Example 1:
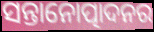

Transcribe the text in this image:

ସନ୍ତାନୋତ୍ପାଦନର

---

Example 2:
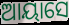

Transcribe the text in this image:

ଆୟାସେ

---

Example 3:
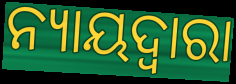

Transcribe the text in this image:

ନ୍ୟାୟଦ୍ୱାରା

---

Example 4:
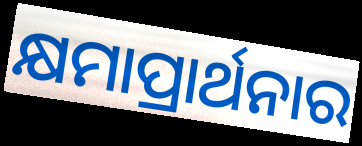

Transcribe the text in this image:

କ୍ଷମାପ୍ରାର୍ଥନାର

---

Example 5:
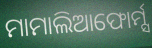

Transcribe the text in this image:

ମାମାଲିଆଫୋର୍ମ୍ସ